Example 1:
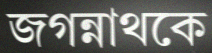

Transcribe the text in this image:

জগন্নাথকে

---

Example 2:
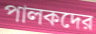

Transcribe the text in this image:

পালকদের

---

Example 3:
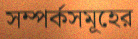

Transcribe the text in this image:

সম্পর্কসমূহের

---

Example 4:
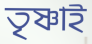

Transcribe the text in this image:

তৃষ্ণাই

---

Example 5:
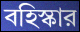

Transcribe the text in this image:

বহিস্কার